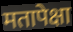
मतापेक्षा